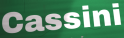
Cassini